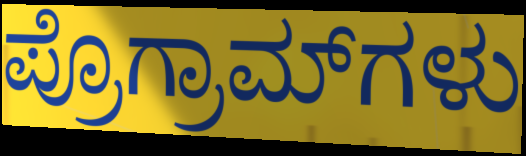
ಪ್ರೊಗ್ರಾಮ್‌ಗಳು